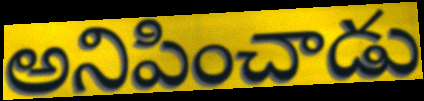
అనిపించాడు